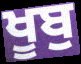
ਖੂਬੁ